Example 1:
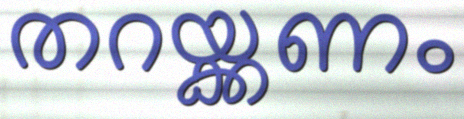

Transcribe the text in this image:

തറയ്ക്കണം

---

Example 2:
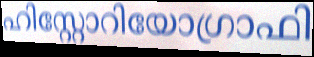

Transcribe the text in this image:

ഹിസ്റ്റോറിയോഗ്രാഫി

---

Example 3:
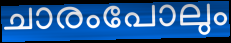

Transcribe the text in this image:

ചാരംപോലും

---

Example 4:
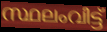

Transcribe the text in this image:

സ്ഥലംവിട്ട്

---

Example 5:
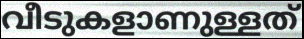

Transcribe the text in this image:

വീടുകളാണുള്ളത്